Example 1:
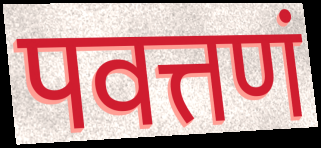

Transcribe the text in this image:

पवत्तणं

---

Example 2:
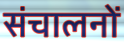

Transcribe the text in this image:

संचालनों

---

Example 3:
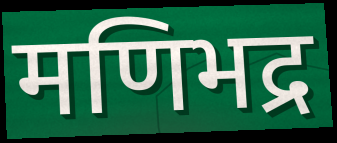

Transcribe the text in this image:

मणिभद्र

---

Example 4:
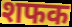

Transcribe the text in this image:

शफक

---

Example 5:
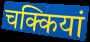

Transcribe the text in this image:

चक्कियां